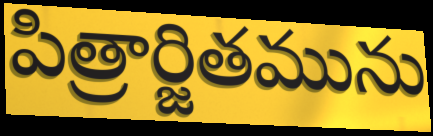
పిత్రార్జితమును